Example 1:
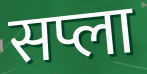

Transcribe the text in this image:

सप्ला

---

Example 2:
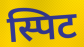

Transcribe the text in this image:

स्पिट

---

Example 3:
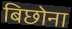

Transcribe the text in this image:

बिछोना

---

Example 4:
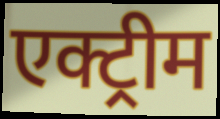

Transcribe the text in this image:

एक्ट्रीम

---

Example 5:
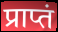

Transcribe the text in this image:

प्राप्तं